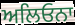
ਅਲਿਓਨਾ